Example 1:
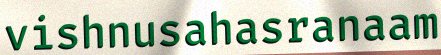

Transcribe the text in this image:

vishnusahasranaam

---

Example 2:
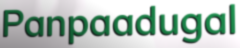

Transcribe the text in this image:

Panpaadugal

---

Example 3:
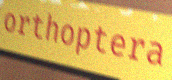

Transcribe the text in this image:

orthoptera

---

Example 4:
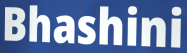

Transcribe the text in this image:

Bhashini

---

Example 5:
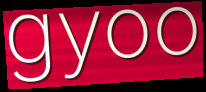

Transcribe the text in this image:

gyoo